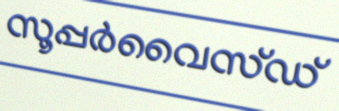
സൂപ്പർവൈസ്ഡ്